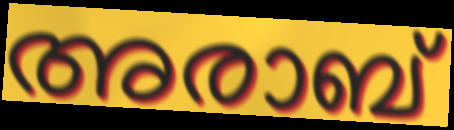
അരാബ്